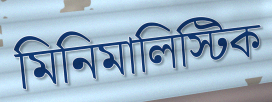
মিনিমালিস্টিক